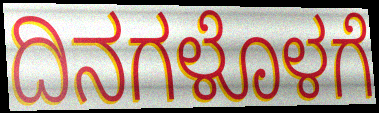
ದಿನಗಳೊಳಗೆ